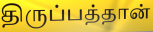
திருப்பத்தான்